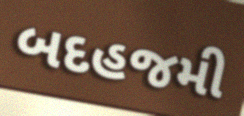
બદહજમી